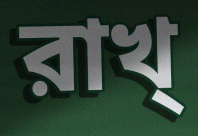
রাখ্